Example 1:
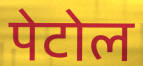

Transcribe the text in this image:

पेटोल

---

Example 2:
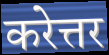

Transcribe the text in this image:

करेत्तर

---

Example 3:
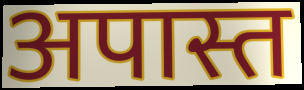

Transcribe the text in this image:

अपास्त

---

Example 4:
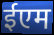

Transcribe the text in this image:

ईएम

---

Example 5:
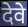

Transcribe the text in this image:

देवे